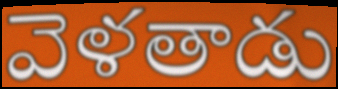
వెళతాడు